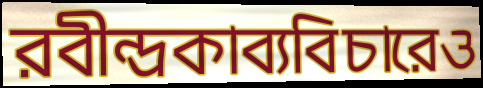
রবীন্দ্রকাব্যবিচারেও